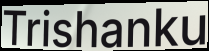
Trishanku